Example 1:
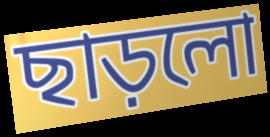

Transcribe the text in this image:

ছাড়লো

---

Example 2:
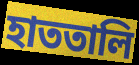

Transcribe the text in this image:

হাততালি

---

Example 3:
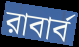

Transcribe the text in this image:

রাবার্ব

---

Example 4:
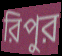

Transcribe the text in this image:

রিপুর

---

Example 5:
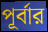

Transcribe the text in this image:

পূর্বার